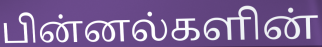
பின்னல்களின்